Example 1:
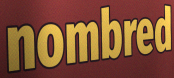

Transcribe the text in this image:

nombred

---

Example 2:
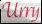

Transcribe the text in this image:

Urry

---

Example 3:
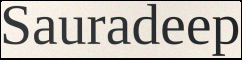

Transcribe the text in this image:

Sauradeep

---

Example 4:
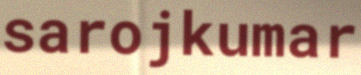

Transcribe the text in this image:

sarojkumar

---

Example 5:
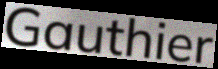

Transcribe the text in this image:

Gauthier